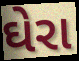
ઘેરા